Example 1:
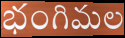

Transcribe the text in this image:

భంగిమల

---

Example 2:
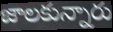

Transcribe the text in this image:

జాలకున్నారు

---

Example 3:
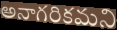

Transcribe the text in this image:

అనాగరికమని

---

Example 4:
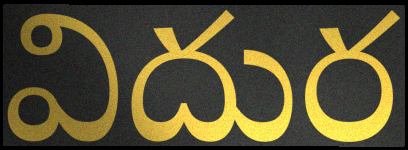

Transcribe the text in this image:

విదుర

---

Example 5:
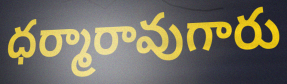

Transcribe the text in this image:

ధర్మారావుగారు